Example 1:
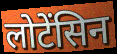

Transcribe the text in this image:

लोटेंसिन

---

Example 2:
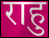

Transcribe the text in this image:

राहु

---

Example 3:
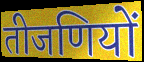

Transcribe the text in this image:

तीजणियों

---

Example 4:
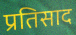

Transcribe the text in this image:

प्रतिसाद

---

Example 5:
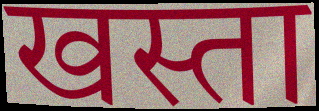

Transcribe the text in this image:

खस्ता